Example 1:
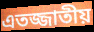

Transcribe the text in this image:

এতজ্জাতীয়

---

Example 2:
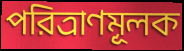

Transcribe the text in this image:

পরিত্রাণমূলক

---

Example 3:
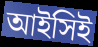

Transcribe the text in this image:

আইসিই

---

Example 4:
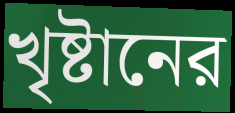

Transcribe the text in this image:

খৃষ্টানের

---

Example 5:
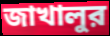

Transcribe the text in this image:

জাখালুর